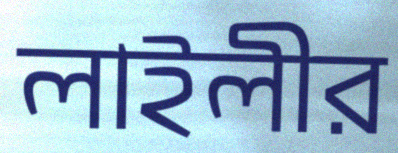
লাইলীর